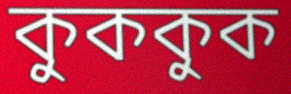
কুককুক